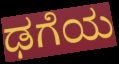
ಢಗೆಯ